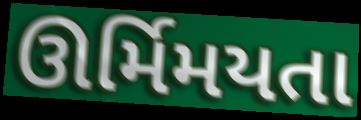
ઊર્મિમયતા